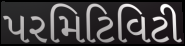
પરમિટિવિટી